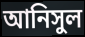
আনিসুল